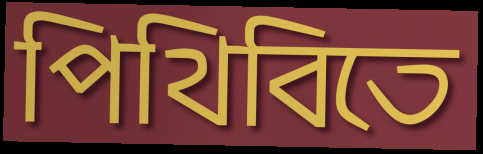
পিথিবিতে